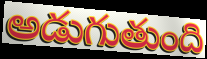
అడుగుతుంది